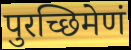
पुरच्छिमेणं